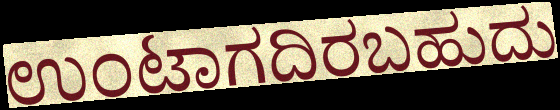
ಉಂಟಾಗದಿರಬಹುದು